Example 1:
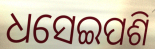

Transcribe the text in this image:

ଧସେଇପଶି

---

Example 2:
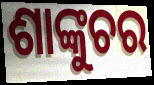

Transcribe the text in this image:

ଶାଙ୍କୁଚର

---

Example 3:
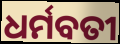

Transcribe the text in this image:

ଧର୍ମବତୀ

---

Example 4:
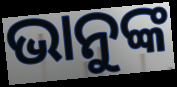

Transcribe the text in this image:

ଭାନୁଙ୍କ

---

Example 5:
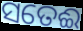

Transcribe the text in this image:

ସତେଈ